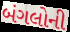
બંગલોની